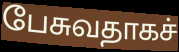
பேசுவதாகச்